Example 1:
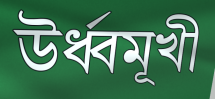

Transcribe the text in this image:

উর্ধ্বমূখী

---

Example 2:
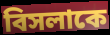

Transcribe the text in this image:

বিসলাকে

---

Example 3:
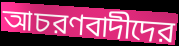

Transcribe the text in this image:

আচরণবাদীদের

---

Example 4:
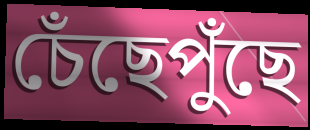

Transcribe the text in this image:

চেঁছেপুঁছে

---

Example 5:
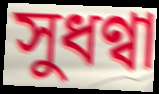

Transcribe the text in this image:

সুধণ্বা